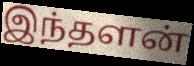
இந்தளன்